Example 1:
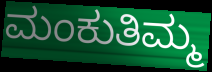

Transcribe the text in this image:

ಮಂಕುತಿಮ್ಮ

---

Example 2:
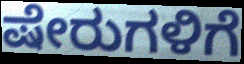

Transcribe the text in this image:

ಷೇರುಗಳಿಗೆ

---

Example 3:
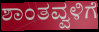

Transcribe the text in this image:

ಶಾಂತವ್ವಳಿಗೆ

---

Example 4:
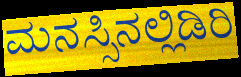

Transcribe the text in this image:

ಮನಸ್ಸಿನಲ್ಲಿಡಿರಿ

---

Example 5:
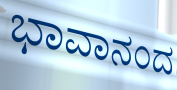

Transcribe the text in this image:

ಭಾವಾನಂದ